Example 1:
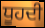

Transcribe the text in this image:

ਧੂਹਦੀ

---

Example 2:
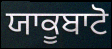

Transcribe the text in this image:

ਯਾਕੂਬਾਟੋ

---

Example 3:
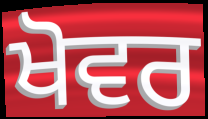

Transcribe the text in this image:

ਖੋਵਰ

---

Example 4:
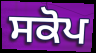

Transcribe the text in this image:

ਸਕੋਪ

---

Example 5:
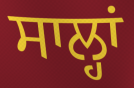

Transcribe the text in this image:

ਸਾਲ੍ਹਾਂ